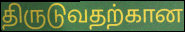
திருடுவதற்கான